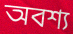
অবশ্য